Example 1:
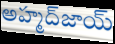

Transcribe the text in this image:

అహ్మద్‌జాయ్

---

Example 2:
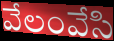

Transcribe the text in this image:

వేలంవేసి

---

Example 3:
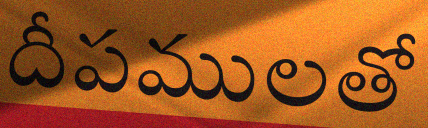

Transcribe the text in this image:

దీపములతో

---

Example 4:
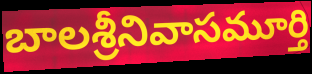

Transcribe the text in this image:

బాలశ్రీనివాసమూర్తి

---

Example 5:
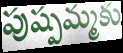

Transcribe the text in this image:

పుష్పమ్మకు